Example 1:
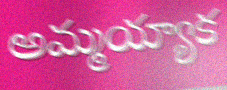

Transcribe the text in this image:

అమ్మయ్యాక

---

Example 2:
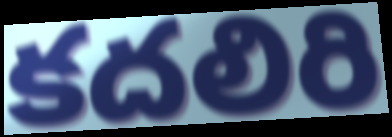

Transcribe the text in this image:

కదలిరి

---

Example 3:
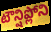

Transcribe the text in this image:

టౌన్షిప్లోని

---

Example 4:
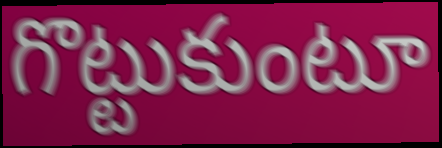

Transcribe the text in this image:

గొట్టుకుంటూ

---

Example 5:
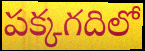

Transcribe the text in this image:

పక్కగదిలో